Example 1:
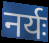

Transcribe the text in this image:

नर्यः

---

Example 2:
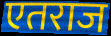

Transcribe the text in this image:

एतराज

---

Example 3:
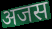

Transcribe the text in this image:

अजस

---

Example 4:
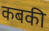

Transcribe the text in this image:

कबकी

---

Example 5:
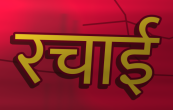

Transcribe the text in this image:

रचाई